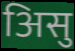
अिसु